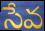
సేవ